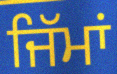
ਜਿੱਮਾਂ